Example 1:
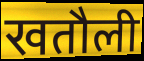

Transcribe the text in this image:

खतौली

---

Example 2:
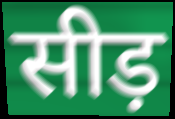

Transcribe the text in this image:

सीड़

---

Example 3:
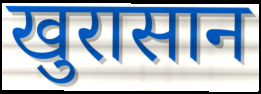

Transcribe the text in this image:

खुरासान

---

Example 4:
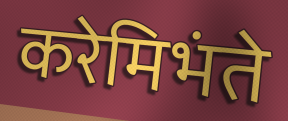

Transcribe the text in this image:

करेमिभंते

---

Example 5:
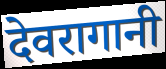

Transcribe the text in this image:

देवरागानी